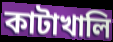
কাটাখালি